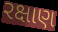
રક્ષાણ